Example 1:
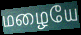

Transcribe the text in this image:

மழையே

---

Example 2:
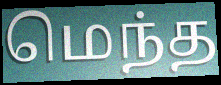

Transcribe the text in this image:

மெந்த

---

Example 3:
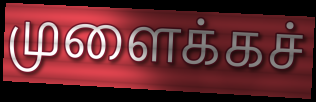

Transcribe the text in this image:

முளைக்கச்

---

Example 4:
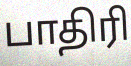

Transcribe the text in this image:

பாதிரி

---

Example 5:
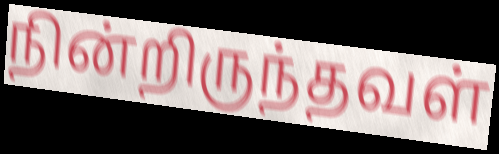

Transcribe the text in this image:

நின்றிருந்தவள்